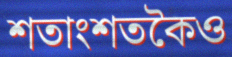
শতাংশতকৈও